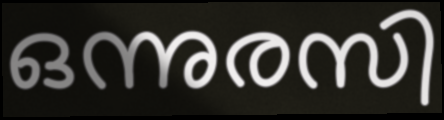
ഒന്നുരസി